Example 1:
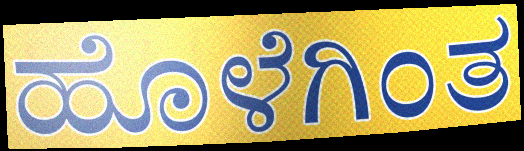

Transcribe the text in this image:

ಹೊಳೆಗಿಂತ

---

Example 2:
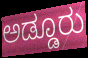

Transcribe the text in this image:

ಅಡ್ಡೂರು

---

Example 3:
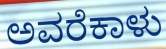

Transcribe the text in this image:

ಅವರೆಕಾಳು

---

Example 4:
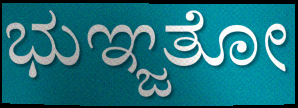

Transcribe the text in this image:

ಭುಞ್ಜತೋ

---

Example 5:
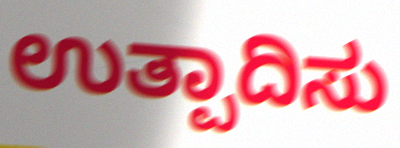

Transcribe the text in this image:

ಉತ್ಪಾದಿಸು